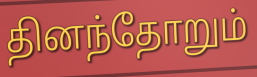
தினந்தோறும்